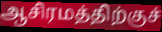
ஆசிரமத்திற்குச்